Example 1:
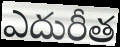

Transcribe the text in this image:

ఎదురీత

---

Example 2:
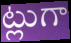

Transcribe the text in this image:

ట్లుగా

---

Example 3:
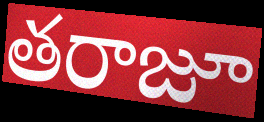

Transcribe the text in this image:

తరాజూ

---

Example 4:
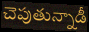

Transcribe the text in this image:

చెపుతున్నాడీ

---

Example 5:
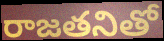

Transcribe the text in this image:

రాజతనితో